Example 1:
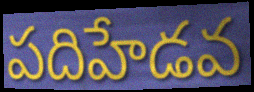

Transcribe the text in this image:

పదిహేడవ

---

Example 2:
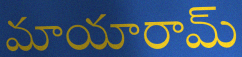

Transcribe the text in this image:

మాయారామ్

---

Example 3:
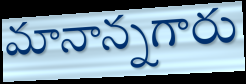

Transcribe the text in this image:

మానాన్నగారు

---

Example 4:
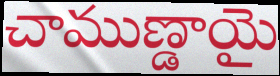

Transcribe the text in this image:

చాముణ్డాయై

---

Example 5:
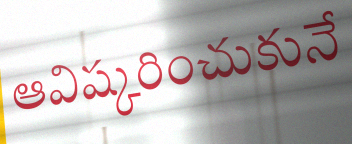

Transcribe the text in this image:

ఆవిష్కరించుకునే